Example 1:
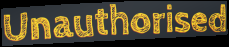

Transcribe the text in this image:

Unauthorised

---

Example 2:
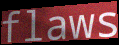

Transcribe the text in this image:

flaws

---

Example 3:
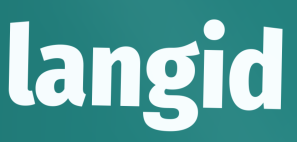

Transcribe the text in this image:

langid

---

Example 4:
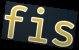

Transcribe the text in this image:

fis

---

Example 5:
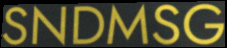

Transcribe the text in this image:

SNDMSG